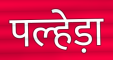
पल्हेड़ा